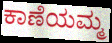
ಕಾಣೆಯಮ್ಮ